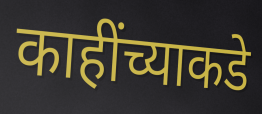
काहींच्याकडे